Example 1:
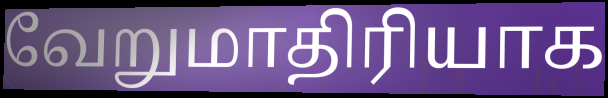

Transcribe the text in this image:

வேறுமாதிரியாக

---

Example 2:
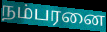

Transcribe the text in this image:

நம்பரனை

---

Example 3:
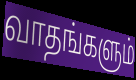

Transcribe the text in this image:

வாதங்களும்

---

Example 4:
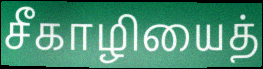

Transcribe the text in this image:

சீகாழியைத்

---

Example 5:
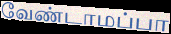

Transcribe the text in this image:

வேண்டாமப்பா